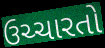
ઉચ્ચારતો